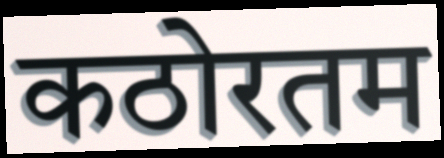
कठोरतम